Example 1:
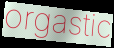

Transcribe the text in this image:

orgastic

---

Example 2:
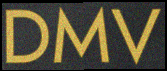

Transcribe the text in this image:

DMV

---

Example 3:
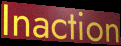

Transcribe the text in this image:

Inaction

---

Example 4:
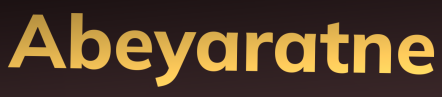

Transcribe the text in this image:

Abeyaratne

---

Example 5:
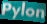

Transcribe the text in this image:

Pylon